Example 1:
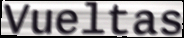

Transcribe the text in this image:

Vueltas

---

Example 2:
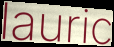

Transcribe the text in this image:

lauric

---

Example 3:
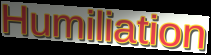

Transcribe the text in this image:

Humiliation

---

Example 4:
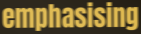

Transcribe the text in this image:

emphasising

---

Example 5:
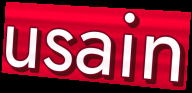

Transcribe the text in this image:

usain